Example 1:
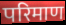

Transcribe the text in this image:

परिमाण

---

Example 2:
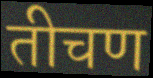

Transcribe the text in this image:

तीचण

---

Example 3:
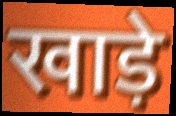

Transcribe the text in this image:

खाड़े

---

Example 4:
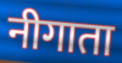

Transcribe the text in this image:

नीगाता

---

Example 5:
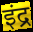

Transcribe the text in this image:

इंद्र